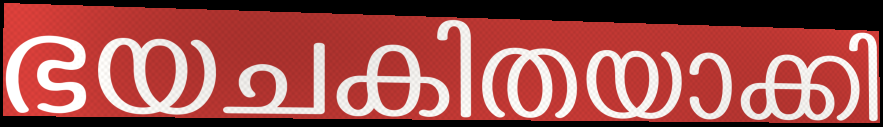
ഭയചകിതയാക്കി